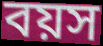
বয়স